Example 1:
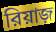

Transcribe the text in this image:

রিয়াজ়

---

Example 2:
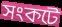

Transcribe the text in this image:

সংকটে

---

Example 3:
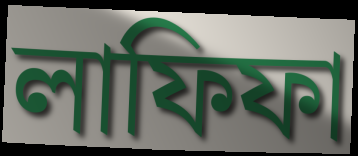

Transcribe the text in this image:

লাফিফা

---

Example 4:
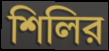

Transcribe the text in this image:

শিলির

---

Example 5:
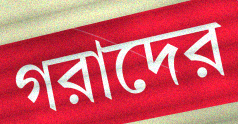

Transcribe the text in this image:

গরাদের